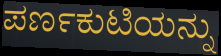
ಪರ್ಣಕುಟಿಯನ್ನು